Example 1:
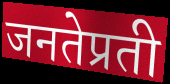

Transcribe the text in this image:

जनतेप्रती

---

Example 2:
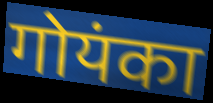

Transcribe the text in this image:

गोयंका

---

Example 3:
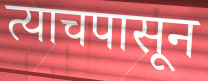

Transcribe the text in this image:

त्याचपासून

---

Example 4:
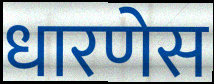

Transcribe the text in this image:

धारणेस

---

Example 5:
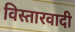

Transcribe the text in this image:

विस्तारवादी